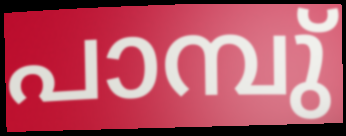
പാമ്പു്